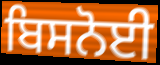
ਬਿਸਨੋਈ